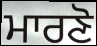
ਮਾਰਣੋ